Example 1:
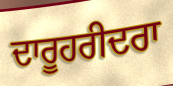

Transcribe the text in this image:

ਦਾਰੂਹਰੀਦਰਾ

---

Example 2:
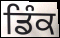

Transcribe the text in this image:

ਡਿੰਕ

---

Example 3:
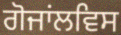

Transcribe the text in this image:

ਗੋਜਾਂਲਵਿਸ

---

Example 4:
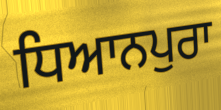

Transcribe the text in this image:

ਧਿਆਨਪੁਰਾ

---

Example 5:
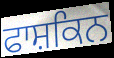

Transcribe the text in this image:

ਫਾਸ਼ਕਿਨ